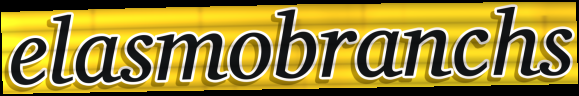
elasmobranchs